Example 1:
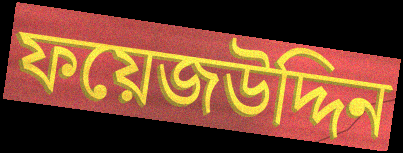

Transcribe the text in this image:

ফয়েজউদ্দিন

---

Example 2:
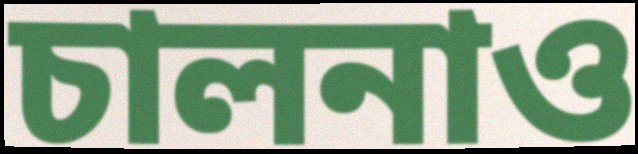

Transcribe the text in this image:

চালনাও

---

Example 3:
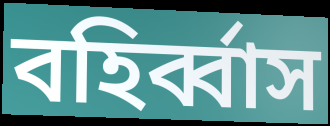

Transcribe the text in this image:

বহির্ব্বাস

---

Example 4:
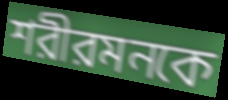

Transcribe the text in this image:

শরীরমনকে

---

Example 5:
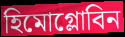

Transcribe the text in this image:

হিমোগ্লোবিন